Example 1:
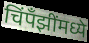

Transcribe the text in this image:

चिंपँझींमध्ये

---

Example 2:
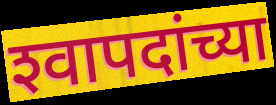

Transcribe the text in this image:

श्‍वापदांच्या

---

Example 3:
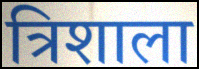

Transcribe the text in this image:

त्रिशाला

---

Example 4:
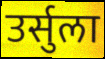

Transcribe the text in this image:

उर्सुला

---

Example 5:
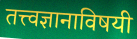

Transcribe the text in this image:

तत्त्वज्ञानाविषयी